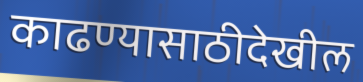
काढण्यासाठीदेखील